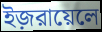
ইজ়রায়েলে